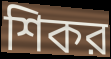
শিকর